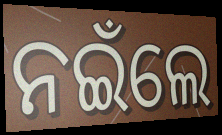
ନଇଁଲେ